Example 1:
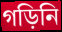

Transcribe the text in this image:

গড়িনি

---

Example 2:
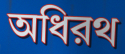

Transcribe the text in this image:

অধিরথ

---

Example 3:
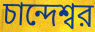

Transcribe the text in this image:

চান্দেশ্বর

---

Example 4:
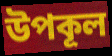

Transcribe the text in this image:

উপকূল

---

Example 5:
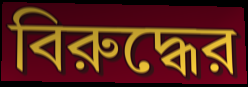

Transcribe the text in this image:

বিরুদ্ধের